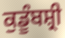
ਕੁਡੂੰਬਸ਼੍ਰੀ